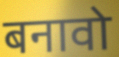
बनावो